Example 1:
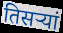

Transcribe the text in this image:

तिसऱ्यां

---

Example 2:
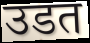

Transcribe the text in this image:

उडत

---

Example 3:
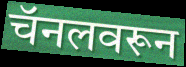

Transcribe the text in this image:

चॅनलवरून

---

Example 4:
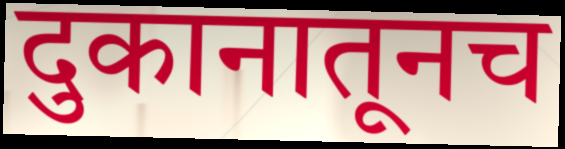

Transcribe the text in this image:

दुकानातूनच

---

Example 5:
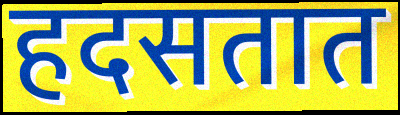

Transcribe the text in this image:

हदसतात